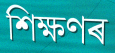
শিক্ষণৰ